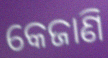
କେଜାଣି